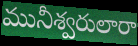
మునీశ్వరులారా